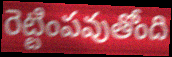
రెట్టింపవుతోంది